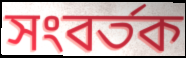
সংবর্তক